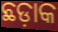
ଛଡ଼ାକ